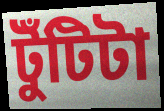
টুঁটিটা